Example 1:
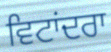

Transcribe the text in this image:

ਵਿਟਾਂਦਰਾ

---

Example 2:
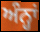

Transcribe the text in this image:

ਅੰਨ੍ਹਾਂ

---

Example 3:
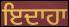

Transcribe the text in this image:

ਇਦਾਹਾ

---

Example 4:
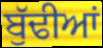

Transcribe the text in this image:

ਬੁੱਢੀਆਂ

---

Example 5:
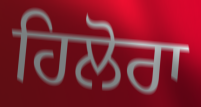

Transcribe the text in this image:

ਹਿਲੋਰਾ